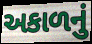
અકાળનું